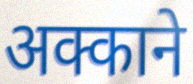
अक्काने